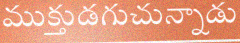
ముక్తుడగుచున్నాడు